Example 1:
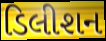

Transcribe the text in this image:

ડિલીશન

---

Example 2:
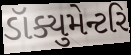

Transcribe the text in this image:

ડૉક્યુમેન્ટરિ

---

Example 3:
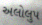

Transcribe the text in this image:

અલોલુપ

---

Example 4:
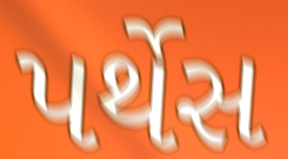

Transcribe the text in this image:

પર્થેસ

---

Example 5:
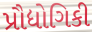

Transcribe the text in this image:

પ્રૌદ્યોગિકી